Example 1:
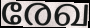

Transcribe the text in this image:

രേഖ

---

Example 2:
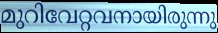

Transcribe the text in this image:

മുറിവേറ്റവനായിരുന്നു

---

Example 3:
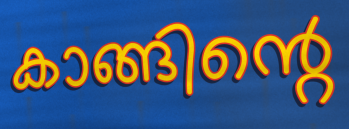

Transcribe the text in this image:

കാങ്ങിന്റെ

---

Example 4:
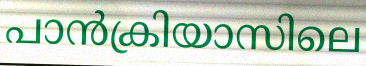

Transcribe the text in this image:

പാൻക്രിയാസിലെ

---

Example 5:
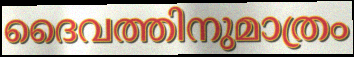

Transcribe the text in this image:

ദൈവത്തിനുമാത്രം